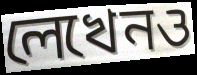
লেখেনও